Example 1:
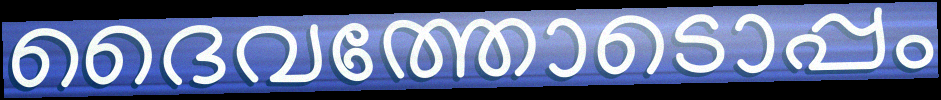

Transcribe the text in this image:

ദൈവത്തോടൊപ്പം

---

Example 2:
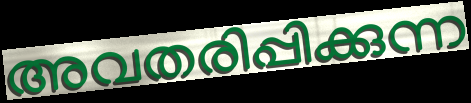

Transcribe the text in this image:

അവതരിപ്പിക്കുന്ന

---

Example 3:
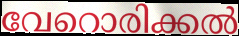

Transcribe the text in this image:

വേറൊരിക്കൽ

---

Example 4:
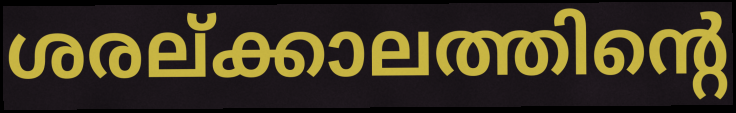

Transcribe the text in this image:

ശരല്ക്കാലത്തിന്റെ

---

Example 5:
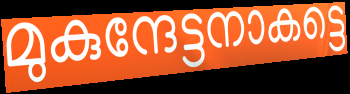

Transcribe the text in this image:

മുകുന്ദേട്ടനാകട്ടെ